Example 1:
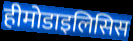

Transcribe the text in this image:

हीमोडाइलिसिस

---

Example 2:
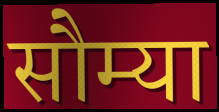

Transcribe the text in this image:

सौम्या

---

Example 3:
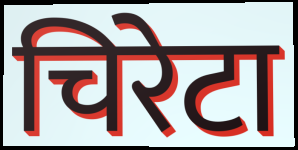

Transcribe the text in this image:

चिरेटा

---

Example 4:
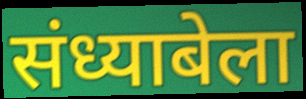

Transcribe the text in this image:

संध्याबेला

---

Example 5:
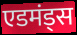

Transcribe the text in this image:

एडमंड्स